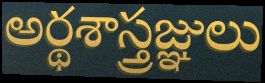
అర్థశాస్త్రజ్ఞులు